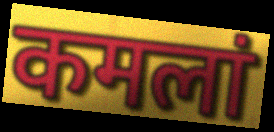
कमलां